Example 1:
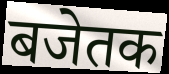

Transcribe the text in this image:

बजेतक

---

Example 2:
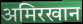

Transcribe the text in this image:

अमिरखान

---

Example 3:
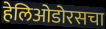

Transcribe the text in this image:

हेलिओडोरसचा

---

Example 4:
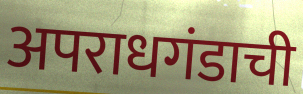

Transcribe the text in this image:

अपराधगंडाची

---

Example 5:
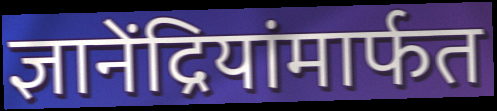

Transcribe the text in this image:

ज्ञानेंद्रियांमार्फत